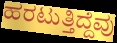
ಹರಟುತ್ತಿದ್ದೆವು